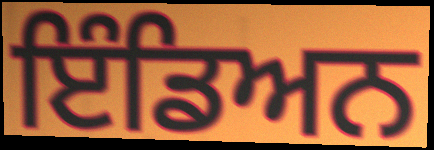
ਇੰਡਿਅਨ